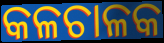
କଳଚାଳକ